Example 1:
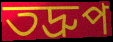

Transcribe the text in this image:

তদ্ৰুপ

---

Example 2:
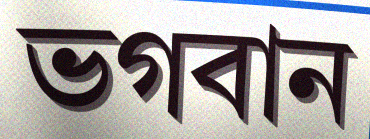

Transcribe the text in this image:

ভগবান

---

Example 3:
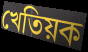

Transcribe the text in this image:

খেতিয়ক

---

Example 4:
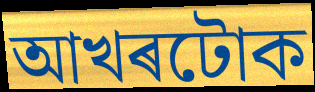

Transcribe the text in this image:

আখৰটোক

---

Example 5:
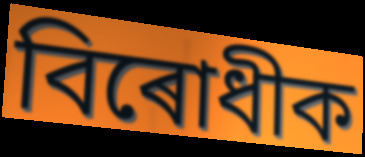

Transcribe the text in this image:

বিৰোধীক